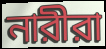
নারীরা